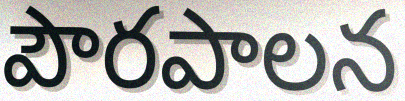
పౌరపాలన